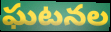
ఘటనల